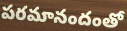
పరమానందంతో